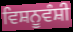
ਵਿਸ਼ਨੂਵੰਸ਼ੀ